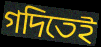
গদিতেই